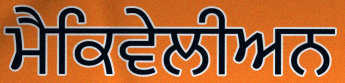
ਮੈਕਿਵੇਲੀਅਨ